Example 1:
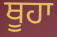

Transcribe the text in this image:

ਥੂਹਾ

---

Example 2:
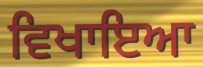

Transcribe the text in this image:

ਵਿਖਾਇਆ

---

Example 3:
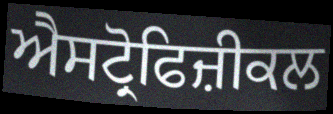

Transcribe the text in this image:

ਐਸਟ੍ਰੋਫਿਜ਼ੀਕਲ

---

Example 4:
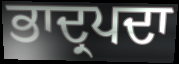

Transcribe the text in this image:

ਭਾਦ੍ਰਪਦਾ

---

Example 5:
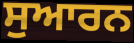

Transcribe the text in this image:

ਸੁਆਰਨ